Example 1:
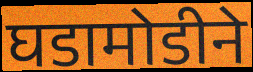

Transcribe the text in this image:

घडामोडीने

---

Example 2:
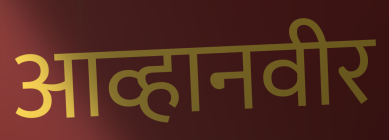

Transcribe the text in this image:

आव्हानवीर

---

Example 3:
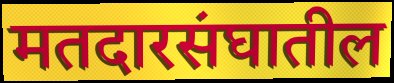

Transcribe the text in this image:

मतदारसंघातील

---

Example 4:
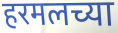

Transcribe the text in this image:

हरमलच्या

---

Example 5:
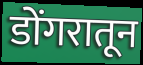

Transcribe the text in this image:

डोंगरातून